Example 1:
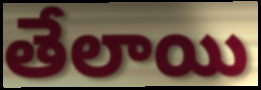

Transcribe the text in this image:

తేలాయి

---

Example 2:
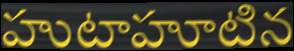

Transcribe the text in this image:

హుటాహూటిన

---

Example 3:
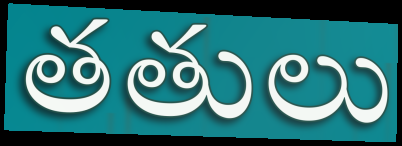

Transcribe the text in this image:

తతులు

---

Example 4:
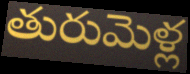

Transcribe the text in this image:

తురుమెళ్ల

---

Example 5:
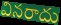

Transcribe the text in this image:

వినరాదు